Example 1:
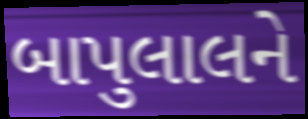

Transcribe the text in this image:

બાપુલાલને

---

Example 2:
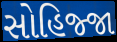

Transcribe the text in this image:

સોહિજ્જા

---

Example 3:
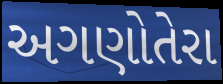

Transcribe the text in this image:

અગણોતેરા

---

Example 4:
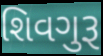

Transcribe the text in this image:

શિવગુરૂ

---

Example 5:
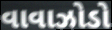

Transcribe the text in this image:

વાવાઝોડો